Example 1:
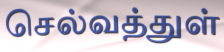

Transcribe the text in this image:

செல்வத்துள்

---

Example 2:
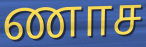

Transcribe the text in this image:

ணாச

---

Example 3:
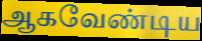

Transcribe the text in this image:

ஆகவேண்டிய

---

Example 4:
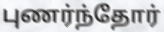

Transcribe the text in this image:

புணர்ந்தோர்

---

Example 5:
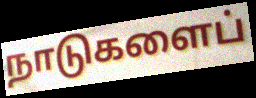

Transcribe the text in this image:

நாடுகளைப்